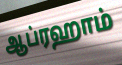
ஆப்ரஹாம்